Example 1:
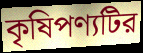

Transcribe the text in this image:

কৃষিপণ্যটির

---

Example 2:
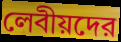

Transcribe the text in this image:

লেবীয়দের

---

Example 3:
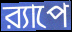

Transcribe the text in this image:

র‍্যাপে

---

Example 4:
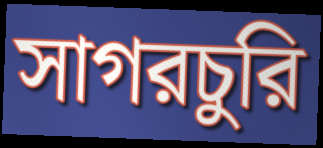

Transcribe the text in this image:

সাগরচুরি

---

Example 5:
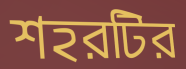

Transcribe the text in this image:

শহরটির